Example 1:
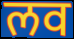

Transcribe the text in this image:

लव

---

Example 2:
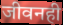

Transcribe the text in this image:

जीवनही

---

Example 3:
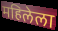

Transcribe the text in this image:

महिलेला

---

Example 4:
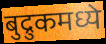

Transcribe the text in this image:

बुद्रुकमध्ये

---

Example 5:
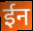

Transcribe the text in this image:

ईन